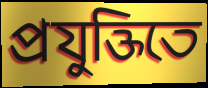
প্রযুক্তিতে